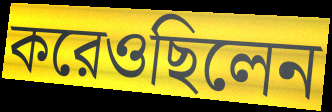
করেওছিলেন